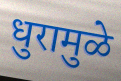
धुरामुळे